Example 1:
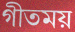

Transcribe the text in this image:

গীতময়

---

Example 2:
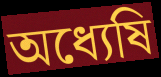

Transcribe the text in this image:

অধ্যেষি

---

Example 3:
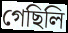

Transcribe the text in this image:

গেছিলি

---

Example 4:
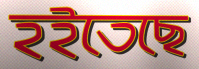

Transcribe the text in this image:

হইতেছে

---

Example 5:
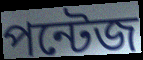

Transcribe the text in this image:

পন্টেজ